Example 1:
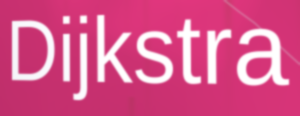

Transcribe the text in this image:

Dijkstra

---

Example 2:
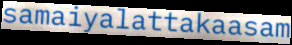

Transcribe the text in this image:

samaiyalattakaasam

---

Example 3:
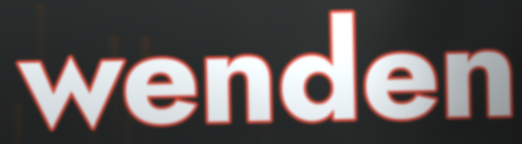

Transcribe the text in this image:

wenden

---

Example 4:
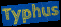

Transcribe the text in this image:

Typhus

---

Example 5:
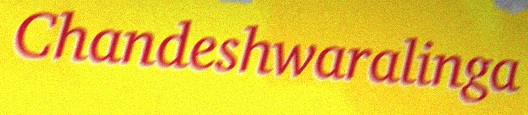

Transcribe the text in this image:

Chandeshwaralinga